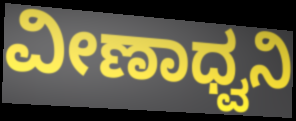
ವೀಣಾಧ್ವನಿ